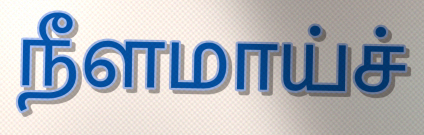
நீளமாய்ச்